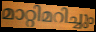
മാറ്റിമറിച്ചും